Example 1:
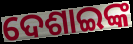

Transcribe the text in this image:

ଦେଶାଇଙ୍କ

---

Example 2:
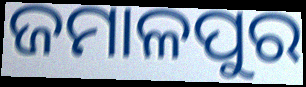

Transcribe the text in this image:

ଜମାଳପୁର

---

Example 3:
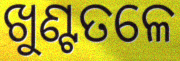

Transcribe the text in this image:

ଖୁଣ୍ଟତଳେ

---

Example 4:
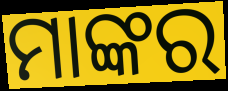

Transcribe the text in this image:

ମାଙ୍କର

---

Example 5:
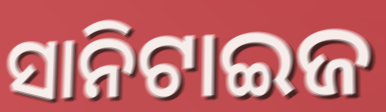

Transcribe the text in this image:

ସାନିଟାଇଜ